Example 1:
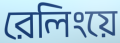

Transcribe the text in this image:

রেলিংয়ে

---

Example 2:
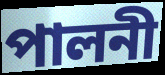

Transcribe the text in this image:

পালনী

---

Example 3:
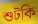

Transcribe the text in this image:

শুটকি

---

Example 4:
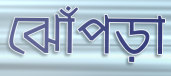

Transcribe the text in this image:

ঝোঁপড়া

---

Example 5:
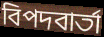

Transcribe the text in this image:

বিপদবার্তা